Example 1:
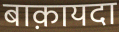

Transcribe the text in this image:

बाक़ायदा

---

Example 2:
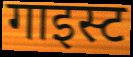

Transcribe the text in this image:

गाइस्ट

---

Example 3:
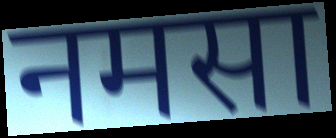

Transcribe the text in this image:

नमसा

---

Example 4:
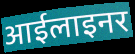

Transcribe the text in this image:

आईलाइनर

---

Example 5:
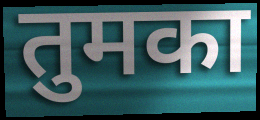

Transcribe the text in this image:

तुमका